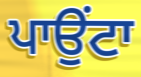
ਪਾਉਂਟਾ